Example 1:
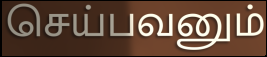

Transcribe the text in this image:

செய்பவனும்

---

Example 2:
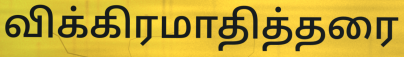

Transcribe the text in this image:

விக்கிரமாதித்தரை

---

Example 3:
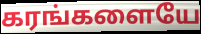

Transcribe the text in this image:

கரங்களையே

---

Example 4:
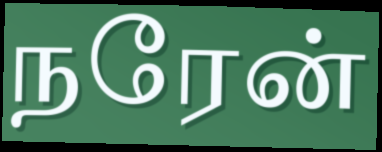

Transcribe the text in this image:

நரேன்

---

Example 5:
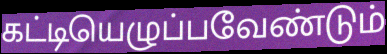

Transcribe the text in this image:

கட்டியெழுப்பவேண்டும்